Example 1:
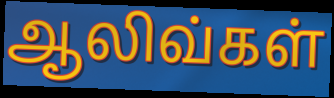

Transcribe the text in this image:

ஆலிவ்கள்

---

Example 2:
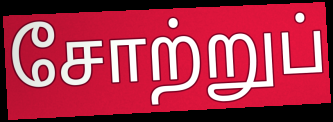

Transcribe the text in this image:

சோற்றுப்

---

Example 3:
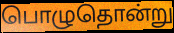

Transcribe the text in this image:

பொழுதொன்று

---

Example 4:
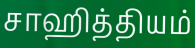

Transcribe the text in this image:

சாஹித்தியம்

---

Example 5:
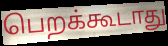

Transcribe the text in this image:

பெறக்கூடாது